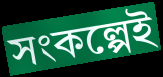
সংকল্পেই